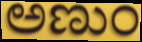
ಅಣುಂ